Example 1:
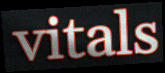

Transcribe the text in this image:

vitals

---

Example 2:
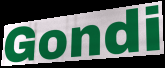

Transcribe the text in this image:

Gondi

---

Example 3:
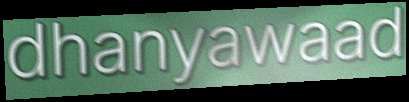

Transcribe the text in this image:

dhanyawaad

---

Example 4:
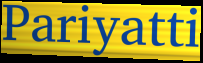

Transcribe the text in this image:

Pariyatti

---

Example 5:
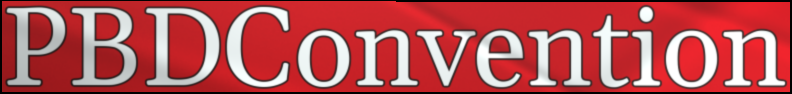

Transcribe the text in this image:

PBDConvention